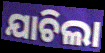
ଯାଚିଲା